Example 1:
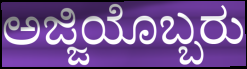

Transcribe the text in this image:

ಅಜ್ಜಿಯೊಬ್ಬರು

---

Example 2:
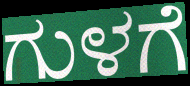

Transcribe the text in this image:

ಗುಳಗೆ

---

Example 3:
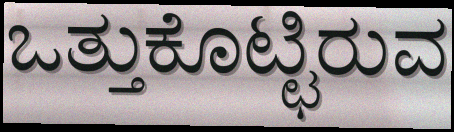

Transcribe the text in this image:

ಒತ್ತುಕೊಟ್ಟಿರುವ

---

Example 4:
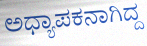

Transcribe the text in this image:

ಅಧ್ಯಾಪಕನಾಗಿದ್ದ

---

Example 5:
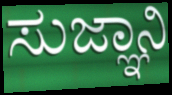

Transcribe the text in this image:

ಸುಜ್ಞಾನಿ